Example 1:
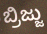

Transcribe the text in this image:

ಬ್ರಿಜ್ಜು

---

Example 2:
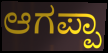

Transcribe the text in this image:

ಆಗಪ್ಪಾ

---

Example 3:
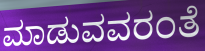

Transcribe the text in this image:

ಮಾಡುವವರಂತೆ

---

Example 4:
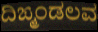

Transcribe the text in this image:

ದಿಙ್ಮಂಡಲವ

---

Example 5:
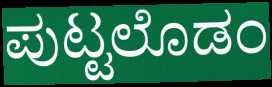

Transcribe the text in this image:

ಪುಟ್ಟಲೊಡಂ